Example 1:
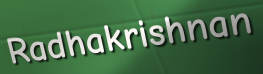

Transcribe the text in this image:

Radhakrishnan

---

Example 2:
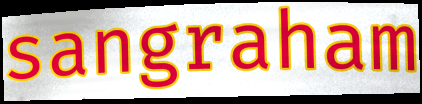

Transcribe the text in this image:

sangraham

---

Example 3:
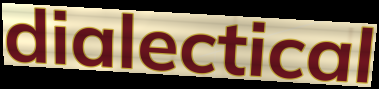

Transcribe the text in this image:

dialectical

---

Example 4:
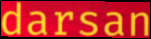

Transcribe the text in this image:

darsan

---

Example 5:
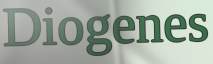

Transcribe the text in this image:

Diogenes